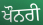
ਖੌਨਰੀ